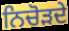
ਨਿਚੋੜਦੇ